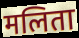
मलिता